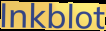
Inkblot